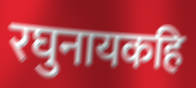
रघुनायकहि